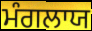
ਮੰਗਲਾਯ